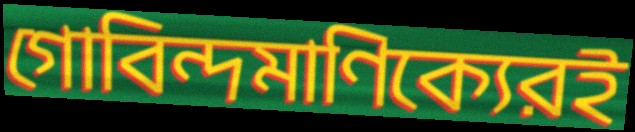
গোবিন্দমাণিক্যেরই